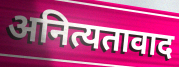
अनित्यतावाद